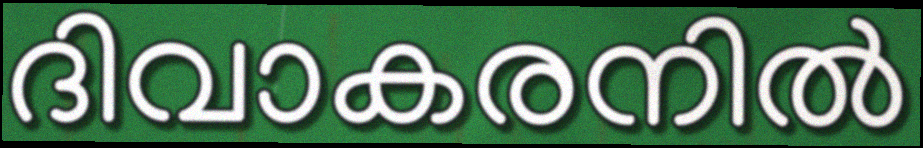
ദിവാകരനിൽ